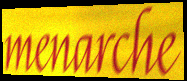
menarche